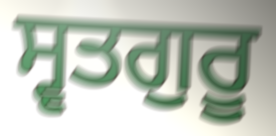
ਸ੍ਵਤਗੁਰੂ